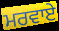
ਮਰਵਾਏ